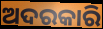
ଅଦରକାରି